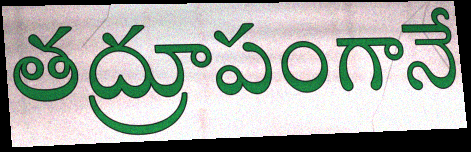
తద్రూపంగానే